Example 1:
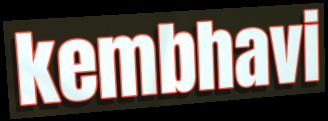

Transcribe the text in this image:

kembhavi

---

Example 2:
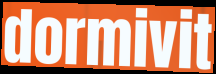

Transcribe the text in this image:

dormivit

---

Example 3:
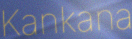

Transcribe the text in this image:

Kankana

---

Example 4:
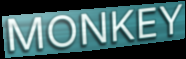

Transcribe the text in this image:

MONKEY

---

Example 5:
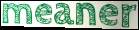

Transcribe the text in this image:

meaner